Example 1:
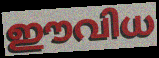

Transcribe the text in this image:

ഈവിധ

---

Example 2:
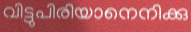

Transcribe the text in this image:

വിട്ടുപിരിയാനെനിക്കു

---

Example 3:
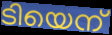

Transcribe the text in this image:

ടിയെന്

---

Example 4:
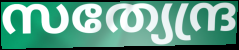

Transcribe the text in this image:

സത്യേന്ദ്ര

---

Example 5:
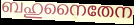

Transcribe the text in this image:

ബഹുനൈതേന